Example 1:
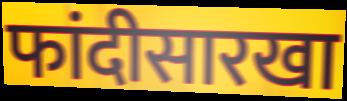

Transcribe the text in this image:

फांदीसारखा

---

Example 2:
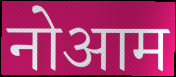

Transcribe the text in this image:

नोआम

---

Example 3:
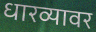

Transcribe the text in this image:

धारव्यावर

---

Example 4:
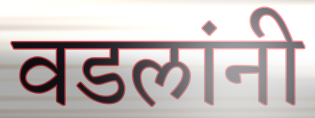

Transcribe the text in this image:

वडलांनी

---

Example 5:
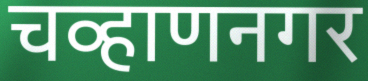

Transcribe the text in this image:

चव्हाणनगर